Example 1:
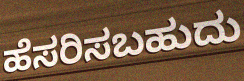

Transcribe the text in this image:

ಹೆಸರಿಸಬಹುದು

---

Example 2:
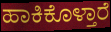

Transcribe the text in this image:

ಹಾಕಿಕೊಳ್ತಾರೆ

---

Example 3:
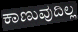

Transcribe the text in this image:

ಕಾಣುವುದಿಲ್ಲ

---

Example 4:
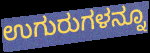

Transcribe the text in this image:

ಉಗುರುಗಳನ್ನೂ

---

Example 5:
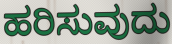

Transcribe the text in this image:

ಹರಿಸುವುದು